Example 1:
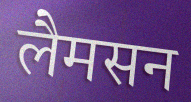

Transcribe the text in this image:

लैमसन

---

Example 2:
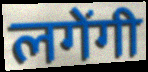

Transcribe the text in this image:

लगेंगी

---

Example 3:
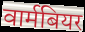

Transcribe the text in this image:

वार्मबियर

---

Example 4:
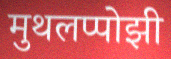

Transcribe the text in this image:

मुथलप्पोझी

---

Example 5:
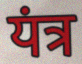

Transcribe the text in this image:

यंत्र